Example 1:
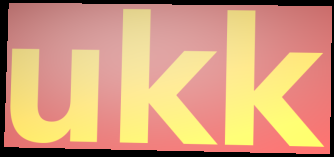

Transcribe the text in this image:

ukk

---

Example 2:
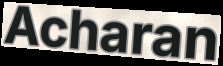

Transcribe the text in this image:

Acharan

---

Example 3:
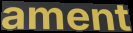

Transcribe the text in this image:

ament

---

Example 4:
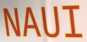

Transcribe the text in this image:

NAUI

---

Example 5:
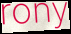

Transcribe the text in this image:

rony